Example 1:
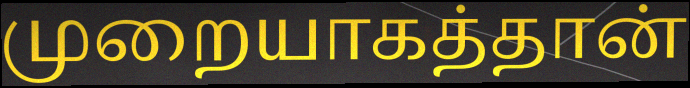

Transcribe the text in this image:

முறையாகத்தான்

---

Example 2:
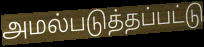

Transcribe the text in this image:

அமல்படுத்தப்பட்டு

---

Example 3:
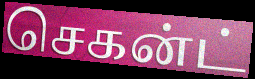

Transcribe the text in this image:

செகன்ட்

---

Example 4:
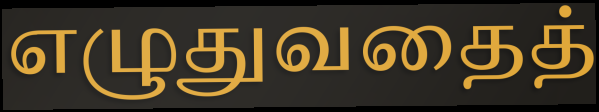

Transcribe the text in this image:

எழுதுவதைத்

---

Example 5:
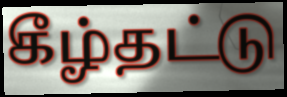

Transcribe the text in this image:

கீழ்தட்டு